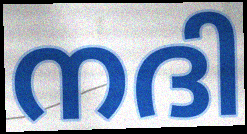
നദി